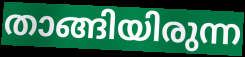
താങ്ങിയിരുന്ന